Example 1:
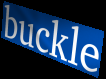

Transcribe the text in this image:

buckle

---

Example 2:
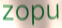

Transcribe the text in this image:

zopu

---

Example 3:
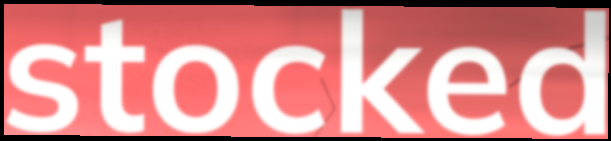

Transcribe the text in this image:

stocked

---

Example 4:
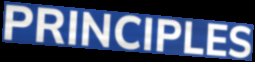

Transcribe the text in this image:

PRINCIPLES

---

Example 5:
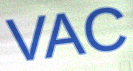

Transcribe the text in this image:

VAC